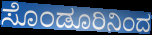
ಸೊಂಡೂರಿನಿಂದ